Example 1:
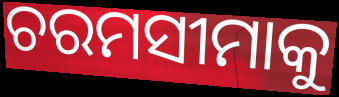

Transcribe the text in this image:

ଚରମସୀମାକୁ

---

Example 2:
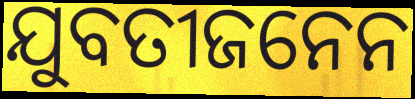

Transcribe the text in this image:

ଯୁବତୀଜନେନ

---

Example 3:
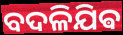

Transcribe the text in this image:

ବଦଳିଯିଵ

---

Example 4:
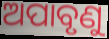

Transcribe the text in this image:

ଅପାବୃଣୁ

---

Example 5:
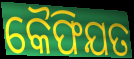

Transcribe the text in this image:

କୈଫିଯତ